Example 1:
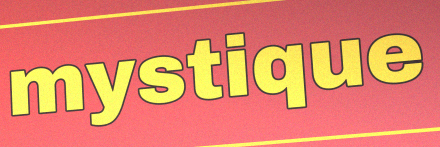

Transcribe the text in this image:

mystique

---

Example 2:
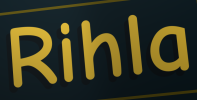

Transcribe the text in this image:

Rihla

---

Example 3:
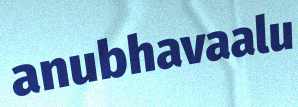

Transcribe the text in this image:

anubhavaalu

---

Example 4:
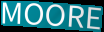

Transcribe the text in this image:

MOORE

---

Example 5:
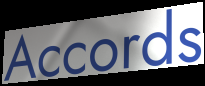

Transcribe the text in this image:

Accords